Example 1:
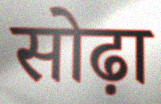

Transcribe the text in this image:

सोढ़ा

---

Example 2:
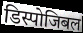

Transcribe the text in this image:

डिस्पोजिबल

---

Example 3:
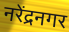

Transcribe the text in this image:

नरेंद्रनगर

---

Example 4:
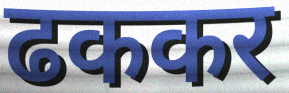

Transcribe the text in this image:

ढककर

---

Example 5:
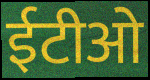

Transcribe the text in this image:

ईटीओ